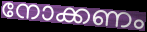
നോക്കണം